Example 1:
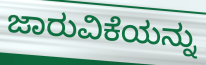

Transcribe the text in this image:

ಜಾರುವಿಕೆಯನ್ನು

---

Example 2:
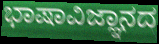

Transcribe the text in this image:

ಭಾಷಾವಿಜ್ಞಾನದ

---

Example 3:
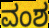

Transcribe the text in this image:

ವಂಶ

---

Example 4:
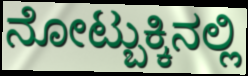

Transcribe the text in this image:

ನೋಟ್ಬುಕ್ಕಿನಲ್ಲಿ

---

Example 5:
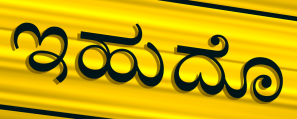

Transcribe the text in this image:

ಇಹುದೊ